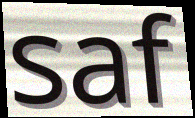
saf